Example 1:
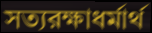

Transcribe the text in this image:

সত্যরক্ষাধর্মার্থ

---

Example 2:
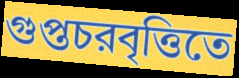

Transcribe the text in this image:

গুপ্তচরবৃত্তিতে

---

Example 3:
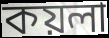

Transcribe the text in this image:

কয়লা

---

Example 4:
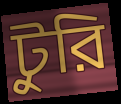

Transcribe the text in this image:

টুরি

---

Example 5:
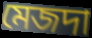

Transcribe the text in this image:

মেজদা